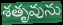
శతృవును